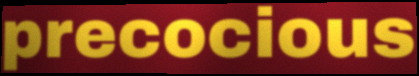
precocious